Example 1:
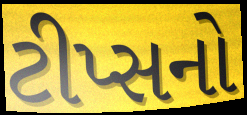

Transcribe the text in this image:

ટીપ્સનો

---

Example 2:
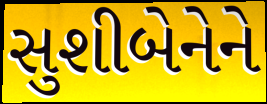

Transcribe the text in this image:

સુશીબેનેને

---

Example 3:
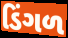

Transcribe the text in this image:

ડિંગળ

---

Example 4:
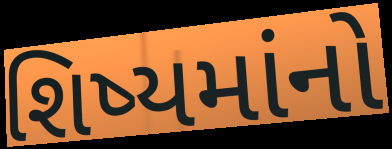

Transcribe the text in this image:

શિષ્યમાંનો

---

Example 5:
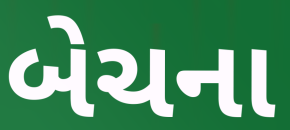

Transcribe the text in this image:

બેચના